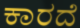
ಕಾರದೆ